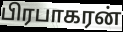
பிரபாகரன்